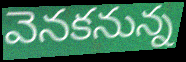
వెనకనున్న